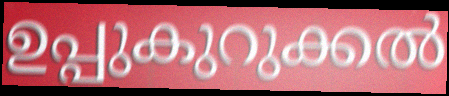
ഉപ്പുകുറുക്കൽ